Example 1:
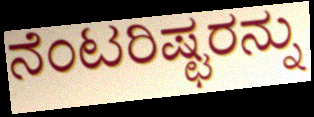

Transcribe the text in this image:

ನೆಂಟರಿಷ್ಟರನ್ನು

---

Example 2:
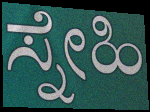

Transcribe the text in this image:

ಸ್ನೇಹಿ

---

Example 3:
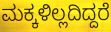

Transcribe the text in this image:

ಮಕ್ಕಳಿಲ್ಲದಿದ್ದರೆ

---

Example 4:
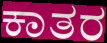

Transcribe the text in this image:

ಕಾತರ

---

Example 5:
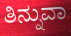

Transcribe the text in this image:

ತಿನ್ನುವಾ